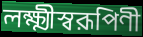
লক্ষ্মীস্বরূপিণী